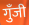
गुँजी